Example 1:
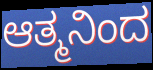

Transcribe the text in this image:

ಆತ್ಮನಿಂದ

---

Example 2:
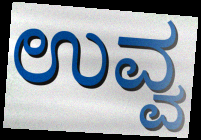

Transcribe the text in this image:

ಉವ್ವ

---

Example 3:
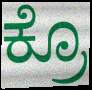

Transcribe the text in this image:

ಕ್ರೊ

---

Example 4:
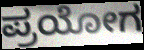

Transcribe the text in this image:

ಪ್ರಯೋಗ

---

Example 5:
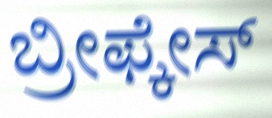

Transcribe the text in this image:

ಬ್ರೀಫ್ಕೇಸ್